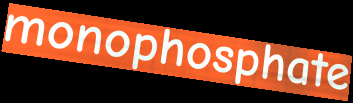
monophosphate